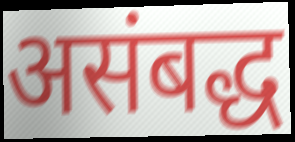
असंबद्ध